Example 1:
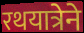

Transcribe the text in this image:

रथयात्रेने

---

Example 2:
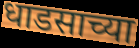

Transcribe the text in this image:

धाडसाच्या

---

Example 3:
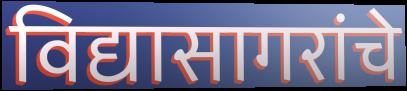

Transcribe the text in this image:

विद्यासागरांचे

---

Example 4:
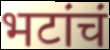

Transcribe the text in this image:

भटांचं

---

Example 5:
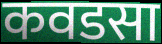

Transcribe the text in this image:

कवडसा